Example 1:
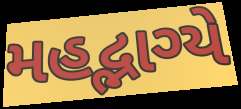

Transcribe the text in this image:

મહદ્ભાગ્યે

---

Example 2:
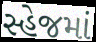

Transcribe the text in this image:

સ્હેજમાં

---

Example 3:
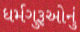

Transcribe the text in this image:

ધર્મગુરૂઓનું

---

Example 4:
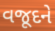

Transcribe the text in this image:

વજૂદને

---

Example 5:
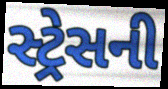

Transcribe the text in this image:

સ્ટ્રેસની